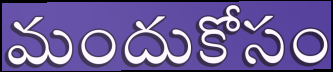
మందుకోసం